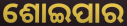
ଶୋଇପାର